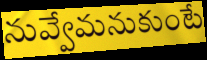
నువ్వేమనుకుంటే